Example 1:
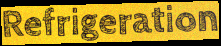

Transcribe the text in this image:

Refrigeration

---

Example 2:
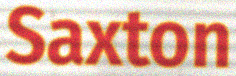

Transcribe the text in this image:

Saxton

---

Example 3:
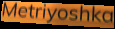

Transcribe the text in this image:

Metriyoshka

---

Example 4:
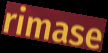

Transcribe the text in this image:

rimase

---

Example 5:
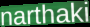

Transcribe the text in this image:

narthaki